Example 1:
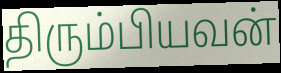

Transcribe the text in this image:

திரும்பியவன்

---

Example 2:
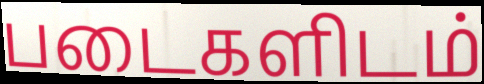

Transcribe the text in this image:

படைகளிடம்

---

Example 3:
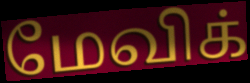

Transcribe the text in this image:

மேவிக்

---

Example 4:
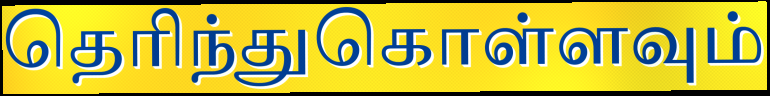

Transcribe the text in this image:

தெரிந்துகொள்ளவும்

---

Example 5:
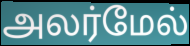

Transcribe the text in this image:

அலர்மேல்